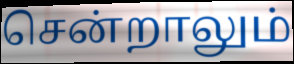
சென்றாலும்